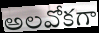
అలవోకగా